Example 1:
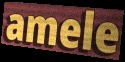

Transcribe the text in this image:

amele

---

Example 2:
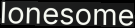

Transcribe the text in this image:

lonesome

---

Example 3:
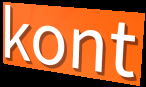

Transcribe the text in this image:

kont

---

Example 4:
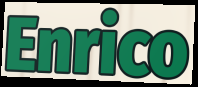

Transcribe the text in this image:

Enrico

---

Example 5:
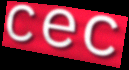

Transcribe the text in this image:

cec